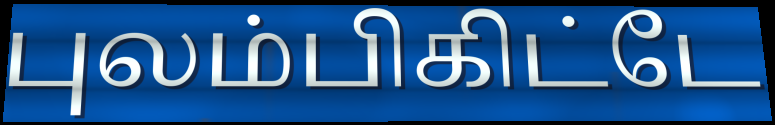
புலம்பிகிட்டே